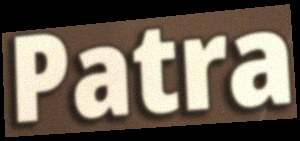
Patra